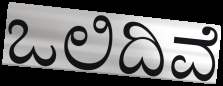
ಒಲಿದಿವೆ